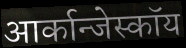
आर्कान्जेस्कॉय